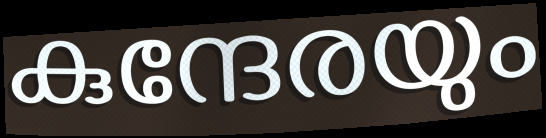
കുന്ദേരയും